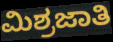
ಮಿಶ್ರಜಾತಿ